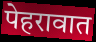
पेहरावात